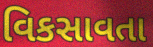
વિકસાવતા